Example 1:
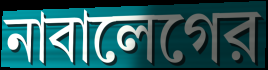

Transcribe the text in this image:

নাবালেগের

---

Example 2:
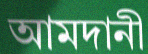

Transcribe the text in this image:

আমদানী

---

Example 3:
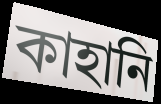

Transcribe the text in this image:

কাহানি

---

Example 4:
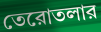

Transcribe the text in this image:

তেরোতলার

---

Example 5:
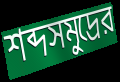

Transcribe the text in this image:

শব্দসমুদ্রের